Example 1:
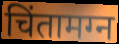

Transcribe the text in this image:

चिंतामग्न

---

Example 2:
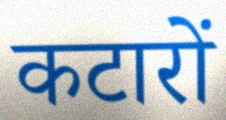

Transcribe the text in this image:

कटारों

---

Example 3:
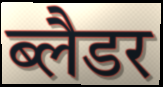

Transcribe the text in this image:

ब्लैडर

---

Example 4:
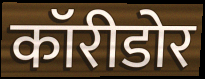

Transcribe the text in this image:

कॉरीडोर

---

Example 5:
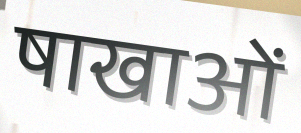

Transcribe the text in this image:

षाखाओं